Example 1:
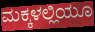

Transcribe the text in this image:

ಮಕ್ಕಳಲ್ಲಿಯೂ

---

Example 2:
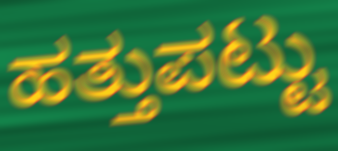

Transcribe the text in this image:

ಹತ್ತುಪಟ್ಟು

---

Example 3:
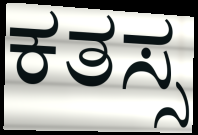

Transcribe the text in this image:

ಕತಸ್ಸ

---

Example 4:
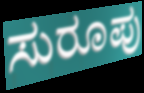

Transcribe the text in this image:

ಸುರೂಪು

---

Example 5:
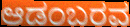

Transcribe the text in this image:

ಆಡಂಬರವ